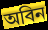
অবিন